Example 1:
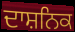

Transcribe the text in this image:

ਦਾਸ਼ਨਿਕ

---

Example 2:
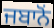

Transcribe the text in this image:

ਜਬਾਨੋਂ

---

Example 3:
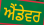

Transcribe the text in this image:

ਐਂਡੇਵਰ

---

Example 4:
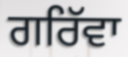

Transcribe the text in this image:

ਗਰਿੱਵਾ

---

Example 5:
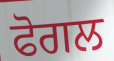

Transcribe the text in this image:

ਫੋਗਲ